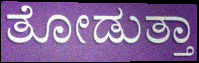
ತೋಡುತ್ತಾ